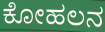
ಕೋಹಲನ